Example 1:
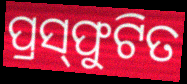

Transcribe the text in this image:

ପ୍ରସ୍‌ଫୁଟିତ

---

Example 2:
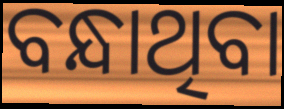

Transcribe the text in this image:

ବନ୍ଧାଥିବା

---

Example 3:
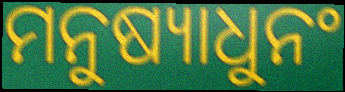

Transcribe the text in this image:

ମନୁଷ୍ୟାଧୁନଂ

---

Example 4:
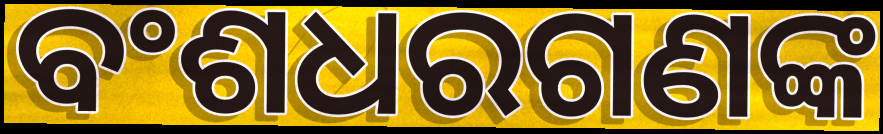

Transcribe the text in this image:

ବଂଶଧରଗଣଙ୍କ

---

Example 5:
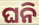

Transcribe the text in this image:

ଘନି